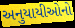
અનુયાયીઓનો